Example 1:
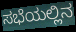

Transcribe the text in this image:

ಸಭೆಯಲ್ಲಿನ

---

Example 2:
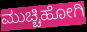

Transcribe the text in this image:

ಮುಚ್ಚಿಹೋಗಿ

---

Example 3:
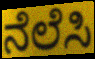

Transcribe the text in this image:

ನೆಲೆಸಿ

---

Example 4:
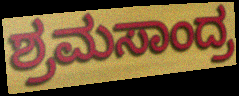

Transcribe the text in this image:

ಶ್ರಮಸಾಂದ್ರ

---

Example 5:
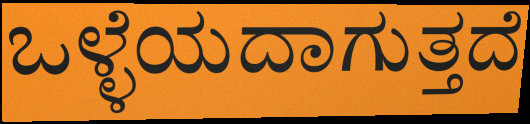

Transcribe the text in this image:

ಒಳ್ಳೆಯದಾಗುತ್ತದೆ